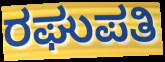
ರಘುಪತಿ